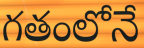
గతంలోనే